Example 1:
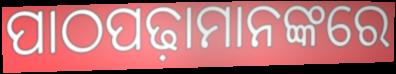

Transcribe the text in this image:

ପାଠପଢ଼ାମାନଙ୍କରେ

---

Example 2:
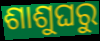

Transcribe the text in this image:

ଶାଶୁଘରୁ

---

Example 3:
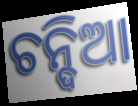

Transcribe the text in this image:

ଚନ୍ଦିଆ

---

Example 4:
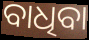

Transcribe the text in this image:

ବାଧିବା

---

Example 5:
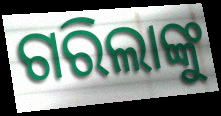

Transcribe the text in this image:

ଗରିଲାଙ୍କୁ